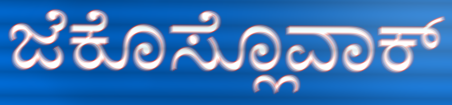
ಜೆಕೊಸ್ಲೊವಾಕ್